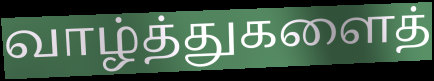
வாழ்த்துகளைத்